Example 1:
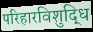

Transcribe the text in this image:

परिहारविशुद्धि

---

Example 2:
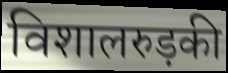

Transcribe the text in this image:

विशालरुड़की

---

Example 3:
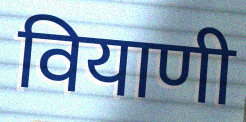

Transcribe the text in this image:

वियाणी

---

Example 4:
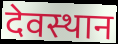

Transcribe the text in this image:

देवस्थान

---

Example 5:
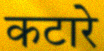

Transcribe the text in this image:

कटारे